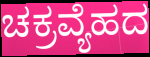
ಚಕ್ರವ್ಯೆಹದ